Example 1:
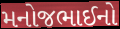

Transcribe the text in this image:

મનોજભાઈનો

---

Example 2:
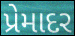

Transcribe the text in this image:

પ્રેમાદર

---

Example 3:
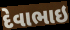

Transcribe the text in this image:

દેવાભાઇ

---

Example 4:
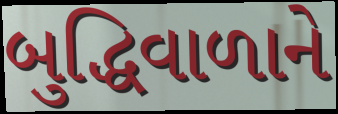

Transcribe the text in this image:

બુદ્ધિવાળાને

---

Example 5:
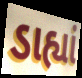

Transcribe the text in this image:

ડાહ્યાં